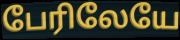
பேரிலேயே